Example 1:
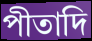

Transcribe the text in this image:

পীতাদি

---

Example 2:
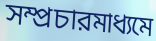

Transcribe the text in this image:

সম্প্রচারমাধ্যমে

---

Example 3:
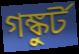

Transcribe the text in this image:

গঙ্কুর্ট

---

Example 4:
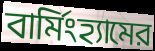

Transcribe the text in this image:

বার্মিংহ্যামের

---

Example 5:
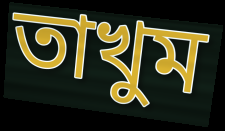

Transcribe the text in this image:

তাখুম